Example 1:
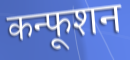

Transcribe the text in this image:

कन्फूशन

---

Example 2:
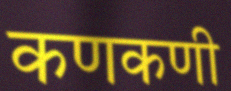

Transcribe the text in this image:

कणकणी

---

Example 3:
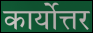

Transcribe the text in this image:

कार्योत्तर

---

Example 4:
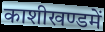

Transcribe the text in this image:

काशीखण्डमें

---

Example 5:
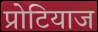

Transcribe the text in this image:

प्रोटियाज